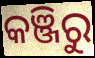
କଞ୍ଜିରୁ